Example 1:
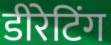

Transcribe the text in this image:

डीरेटिंग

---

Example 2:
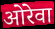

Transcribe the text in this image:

ओरेवा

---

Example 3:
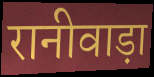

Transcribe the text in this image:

रानीवाड़ा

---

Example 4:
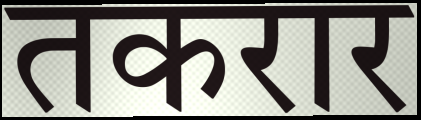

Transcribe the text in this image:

तकरार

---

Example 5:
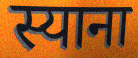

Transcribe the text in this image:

स्याना